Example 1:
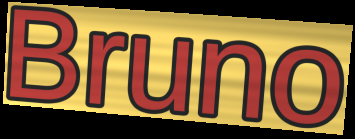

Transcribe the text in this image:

Bruno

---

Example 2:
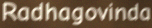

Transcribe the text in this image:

Radhagovinda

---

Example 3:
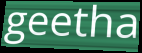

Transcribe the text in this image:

geetha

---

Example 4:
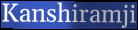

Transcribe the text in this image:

Kanshiramji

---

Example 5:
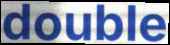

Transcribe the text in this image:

double